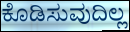
ಕೊಡಿಸುವುದಿಲ್ಲ